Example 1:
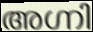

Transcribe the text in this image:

അഗ്നി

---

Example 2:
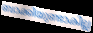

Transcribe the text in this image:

ബാക്കിയുണ്ടാകില്ല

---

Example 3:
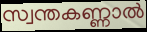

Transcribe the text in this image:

സ്വന്തകണ്ണാൽ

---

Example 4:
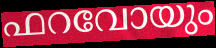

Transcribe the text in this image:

ഫറവോയും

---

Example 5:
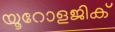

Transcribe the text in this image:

യൂറോളജിക്